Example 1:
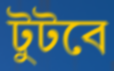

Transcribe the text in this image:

টুটবে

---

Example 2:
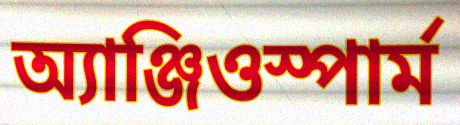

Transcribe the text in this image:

অ্যাঞ্জিওস্পার্ম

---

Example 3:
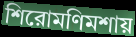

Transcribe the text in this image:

শিরোমণিমশায়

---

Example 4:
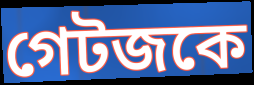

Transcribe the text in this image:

গেটজকে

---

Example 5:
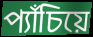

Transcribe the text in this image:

প্যাঁচিয়ে